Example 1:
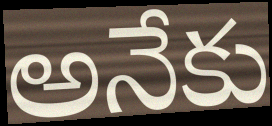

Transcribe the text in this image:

అనేకు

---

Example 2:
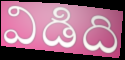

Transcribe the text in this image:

విడిది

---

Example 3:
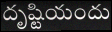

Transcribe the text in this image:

దృష్టియందు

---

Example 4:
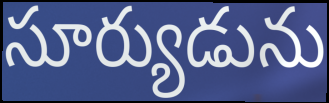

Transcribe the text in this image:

సూర్యుడును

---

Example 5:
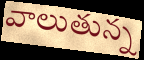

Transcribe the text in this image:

వాలుతున్న